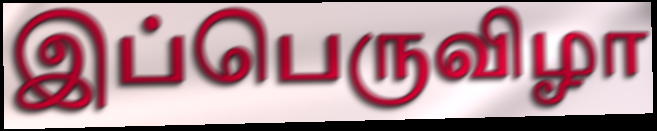
இப்பெருவிழா